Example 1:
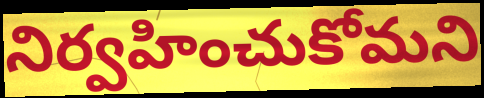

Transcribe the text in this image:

నిర్వహించుకోమని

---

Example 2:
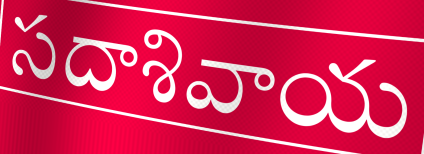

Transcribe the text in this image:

సదాశివాయ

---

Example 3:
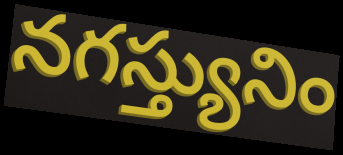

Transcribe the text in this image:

నగస్త్యునిం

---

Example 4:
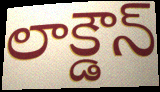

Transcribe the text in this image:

లాక్డౌన్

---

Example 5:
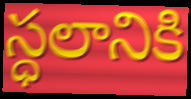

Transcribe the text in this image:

స్ధలానికి